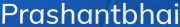
Prashantbhai